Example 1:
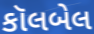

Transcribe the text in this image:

કૉલબેલ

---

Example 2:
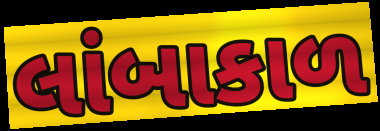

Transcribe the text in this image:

લાંબાકાળ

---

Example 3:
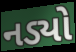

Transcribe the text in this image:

નડ્યો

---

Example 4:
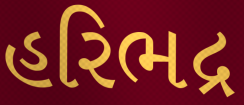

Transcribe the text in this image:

હરિભદ્ર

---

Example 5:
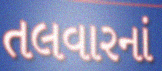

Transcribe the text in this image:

તલવારનાં